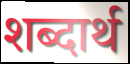
शब्दार्थ